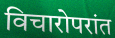
विचारोपरांत